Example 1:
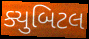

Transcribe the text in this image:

ક્યુબિટલ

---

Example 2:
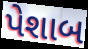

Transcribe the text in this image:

પેશાબ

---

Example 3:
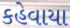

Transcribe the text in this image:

કહેવાયા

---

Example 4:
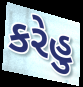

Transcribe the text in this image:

કરેહુ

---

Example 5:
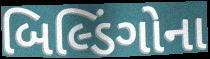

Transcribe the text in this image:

બિલ્ડિંગોના